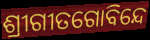
ଶ୍ରୀଗୀତଗୋବିନ୍ଦେ